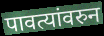
पावत्यांवरुन